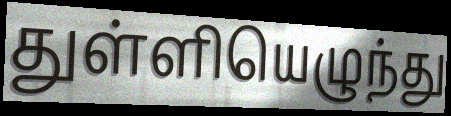
துள்ளியெழுந்து